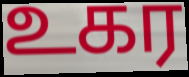
உகர